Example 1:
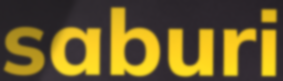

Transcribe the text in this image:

saburi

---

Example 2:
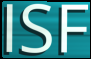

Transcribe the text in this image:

ISF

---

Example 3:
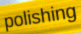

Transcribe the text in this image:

polishing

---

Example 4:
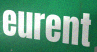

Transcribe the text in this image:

eurent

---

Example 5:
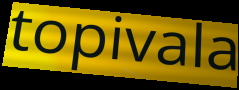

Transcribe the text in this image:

topivala